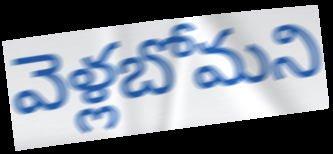
వెళ్లబోమని